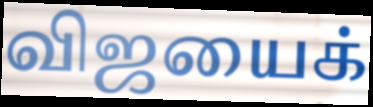
விஜயைக்